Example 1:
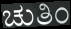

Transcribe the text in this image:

ಚುತಿಂ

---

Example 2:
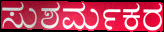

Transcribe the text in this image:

ಸುಶರ್ಮಕರ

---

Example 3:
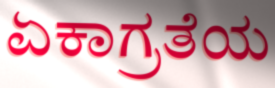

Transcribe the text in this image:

ಏಕಾಗ್ರತೆಯ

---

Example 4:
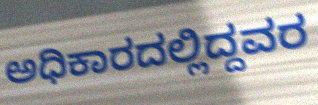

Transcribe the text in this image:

ಅಧಿಕಾರದಲ್ಲಿದ್ದವರ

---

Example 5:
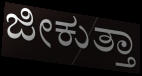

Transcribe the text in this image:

ಜೀಕುತ್ತಾ